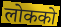
लोकको